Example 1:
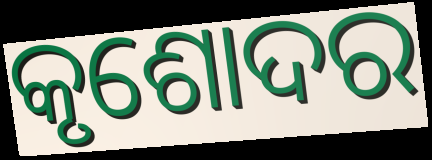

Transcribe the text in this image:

କୃଶୋଦର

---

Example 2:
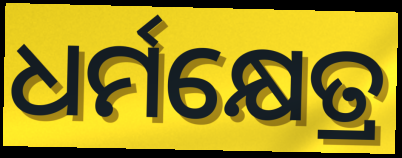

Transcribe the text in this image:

ଧର୍ମକ୍ଷେତ୍ର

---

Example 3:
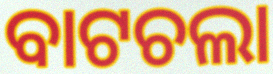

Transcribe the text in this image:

ବାଟଚଲା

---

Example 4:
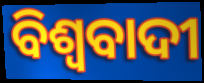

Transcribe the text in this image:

ବିଶ୍ଵବାଦୀ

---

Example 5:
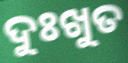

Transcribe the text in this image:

ଦୁଃଖୁତ